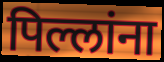
पिल्लांना